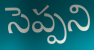
సెప్పని